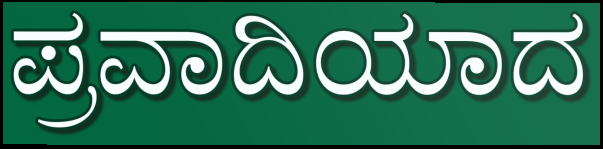
ಪ್ರವಾದಿಯಾದ